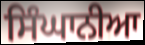
ਸਿੰਘਾਨੀਆ